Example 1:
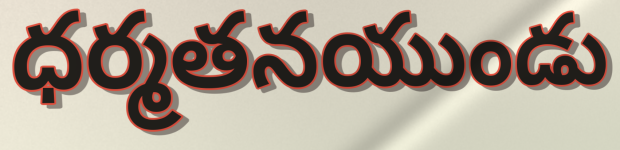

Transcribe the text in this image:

ధర్మతనయుండు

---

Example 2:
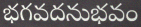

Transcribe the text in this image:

భగవదనుభవం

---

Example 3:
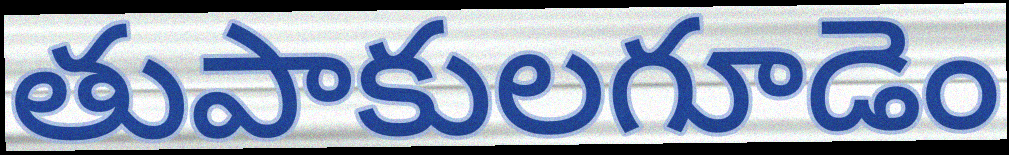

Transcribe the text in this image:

తుపాకులగూడెం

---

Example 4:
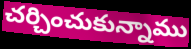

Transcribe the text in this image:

చర్చించుకున్నాము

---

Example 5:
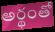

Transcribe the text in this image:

అర్థంతో